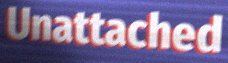
Unattached